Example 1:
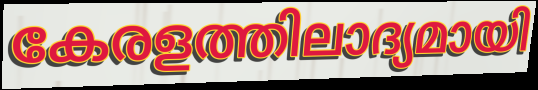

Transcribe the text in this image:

കേരളത്തിലാദ്യമായി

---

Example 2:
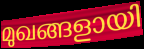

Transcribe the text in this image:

മുഖങ്ങളായി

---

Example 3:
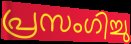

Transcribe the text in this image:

പ്രസംഗിച്ചു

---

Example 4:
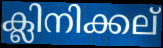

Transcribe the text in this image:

ക്ലിനിക്കല്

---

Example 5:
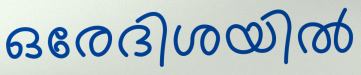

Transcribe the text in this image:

ഒരേദിശയിൽ